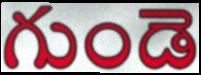
గుండె